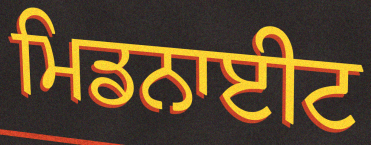
ਮਿਡਨਾਈਟ